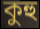
কুহু